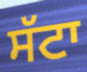
ਸੱਟਾ